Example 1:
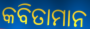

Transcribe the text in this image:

କବିତାମାନ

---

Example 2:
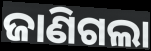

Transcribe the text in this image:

ଜାଣିଗଲା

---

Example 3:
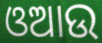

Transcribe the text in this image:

ଓଆଉ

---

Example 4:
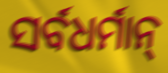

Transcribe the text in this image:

ସର୍ବଧର୍ମାନ୍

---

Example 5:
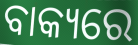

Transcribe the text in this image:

ବାକ୍ୟରେ